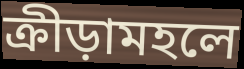
ক্রীড়ামহলে